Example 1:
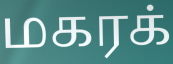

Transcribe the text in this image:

மகரக்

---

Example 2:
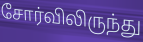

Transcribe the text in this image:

சோர்விலிருந்து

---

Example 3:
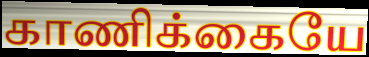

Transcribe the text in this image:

காணிக்கையே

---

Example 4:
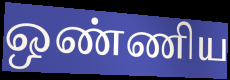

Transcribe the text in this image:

ஒண்ணிய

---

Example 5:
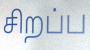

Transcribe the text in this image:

சிறப்ப